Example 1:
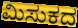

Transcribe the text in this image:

ಮಿಸುಕದ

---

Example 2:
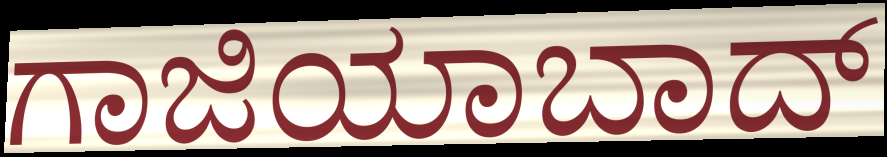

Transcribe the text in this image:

ಗಾಜಿಯಾಬಾದ್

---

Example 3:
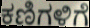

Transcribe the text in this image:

ಕಣಿಗಳಿಗೆ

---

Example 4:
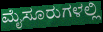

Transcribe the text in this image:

ಮೈಸೂರುಗಳಲ್ಲಿ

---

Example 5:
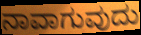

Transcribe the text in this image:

ನಾವಾಗುವುದು